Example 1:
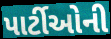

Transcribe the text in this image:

પાર્ટીઓની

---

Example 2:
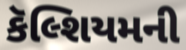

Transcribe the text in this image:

કૅલ્શિયમની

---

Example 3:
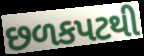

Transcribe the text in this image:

છળકપટથી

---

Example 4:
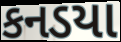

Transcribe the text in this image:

કનડયા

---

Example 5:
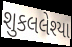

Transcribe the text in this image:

શુકલલેશ્યા